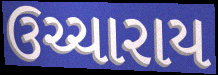
ઉચ્ચારાય